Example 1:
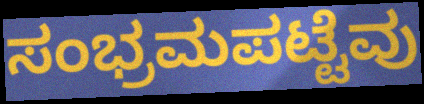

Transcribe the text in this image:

ಸಂಭ್ರಮಪಟ್ಟೆವು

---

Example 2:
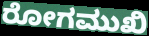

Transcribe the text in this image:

ರೋಗಮುಖಿ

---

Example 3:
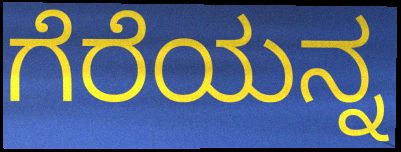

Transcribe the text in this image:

ಗೆರೆಯನ್ನ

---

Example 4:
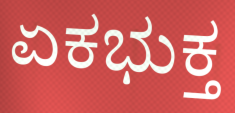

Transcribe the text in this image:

ಏಕಭುಕ್ತ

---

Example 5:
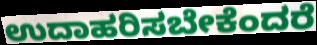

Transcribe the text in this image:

ಉದಾಹರಿಸಬೇಕೆಂದರೆ